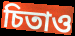
চিতাও